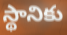
స్థానికు